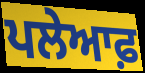
ਪਲੇਆਫ਼